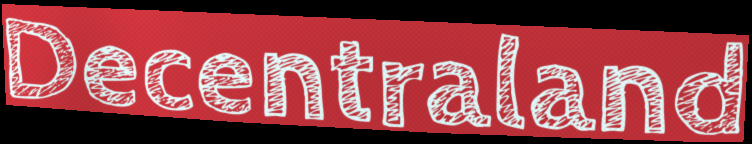
Decentraland